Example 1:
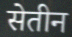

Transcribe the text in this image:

सेतीन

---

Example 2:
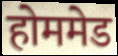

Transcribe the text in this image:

होममेड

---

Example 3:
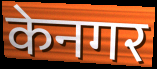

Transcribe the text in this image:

केनगर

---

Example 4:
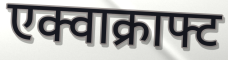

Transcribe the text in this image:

एक्वाक्राफ्ट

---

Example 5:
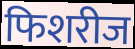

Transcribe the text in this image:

फिशरीज